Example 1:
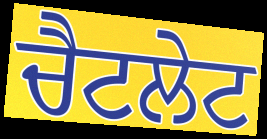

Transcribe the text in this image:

ਚੈਟਲੇਟ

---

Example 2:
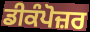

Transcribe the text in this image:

ਡੀਕੰਪੋਜ਼ਰ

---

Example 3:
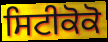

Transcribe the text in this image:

ਸਿਟੀਕੋਕੋ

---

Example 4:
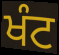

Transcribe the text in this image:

ਖੰਟ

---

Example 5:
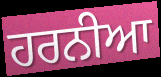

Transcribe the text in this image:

ਹਰਨੀਆ